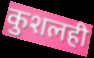
कुशलही